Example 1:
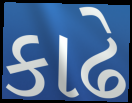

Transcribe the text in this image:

કાઢે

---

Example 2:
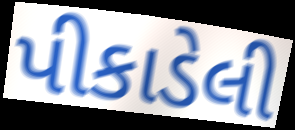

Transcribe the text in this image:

પીકાડેલી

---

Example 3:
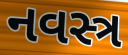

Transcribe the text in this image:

નવસ્ત્ર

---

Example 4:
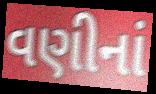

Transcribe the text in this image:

વણીનાં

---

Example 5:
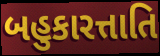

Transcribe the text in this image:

બહુકારત્તાતિ